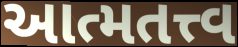
આત્મતત્ત્વ